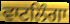
ਵਾਟਲਿੰਗਾ